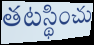
తటస్థించు